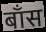
बाँस